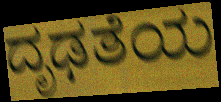
ದೃಢತೆಯ